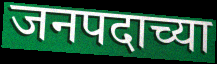
जनपदाच्या